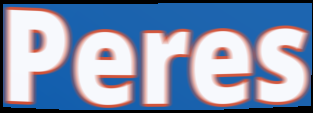
Peres